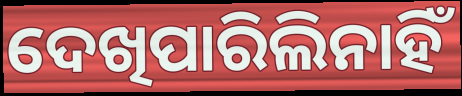
ଦେଖିପାରିଲିନାହିଁ